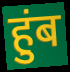
हुंब